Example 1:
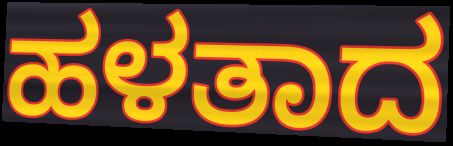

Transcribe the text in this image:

ಹಳತಾದ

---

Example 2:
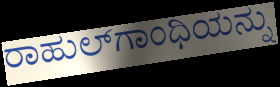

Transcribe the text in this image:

ರಾಹುಲ್‌ಗಾಂಧಿಯನ್ನು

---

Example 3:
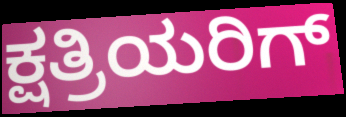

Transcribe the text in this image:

ಕ್ಷತ್ರಿಯರಿಗ್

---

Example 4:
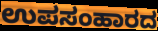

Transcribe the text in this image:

ಉಪಸಂಹಾರದ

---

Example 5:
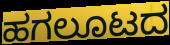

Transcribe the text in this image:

ಹಗಲೂಟದ